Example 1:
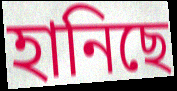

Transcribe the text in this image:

হানিছে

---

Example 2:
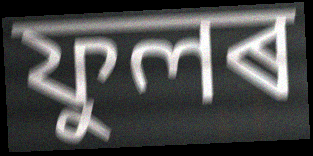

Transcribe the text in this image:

ফুলৰ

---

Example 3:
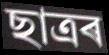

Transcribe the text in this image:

ছাত্ৰৰ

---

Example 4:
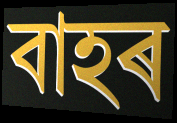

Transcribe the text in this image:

বাহৰ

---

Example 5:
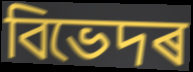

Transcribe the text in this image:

বিভেদৰ